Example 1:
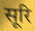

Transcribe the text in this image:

सूरि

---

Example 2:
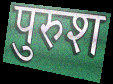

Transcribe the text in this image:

पुरुश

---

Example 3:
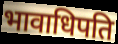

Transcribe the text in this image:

भावाधिपति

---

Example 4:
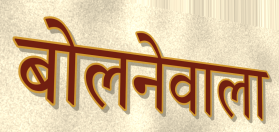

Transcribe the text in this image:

बोलनेवाला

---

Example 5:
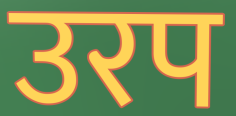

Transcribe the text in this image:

उरप